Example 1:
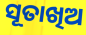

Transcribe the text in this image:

ସୂତାଖିଅ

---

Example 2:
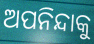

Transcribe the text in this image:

ଅପନିନ୍ଦାକୁ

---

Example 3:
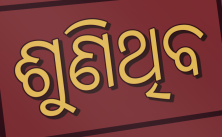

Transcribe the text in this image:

ଶୁଣିଥିବ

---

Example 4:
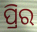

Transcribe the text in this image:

ପ୍ରିର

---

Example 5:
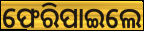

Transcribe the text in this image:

ଫେରିପାଇଲେ